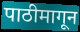
पाठीमागून